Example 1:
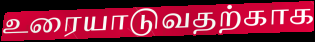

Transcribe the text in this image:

உரையாடுவதற்காக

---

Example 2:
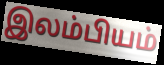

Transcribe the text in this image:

இலம்பியம்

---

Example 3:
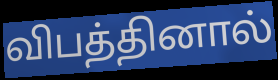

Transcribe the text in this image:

விபத்தினால்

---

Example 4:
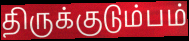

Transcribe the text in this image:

திருக்குடும்பம்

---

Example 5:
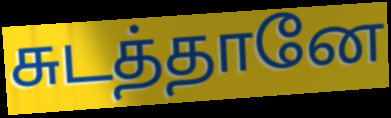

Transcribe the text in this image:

சுடத்தானே